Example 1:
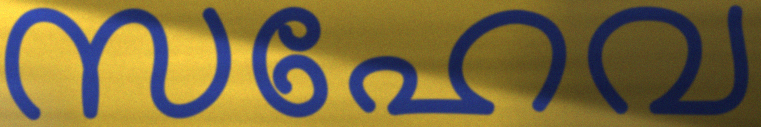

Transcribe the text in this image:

സഹേവ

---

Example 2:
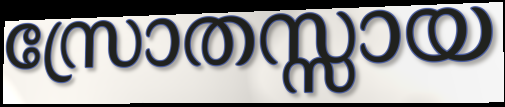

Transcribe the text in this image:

സ്രോതസ്സായ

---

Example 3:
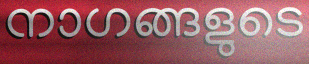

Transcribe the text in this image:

നാഗങ്ങളുടെ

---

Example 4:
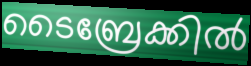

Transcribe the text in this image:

ടൈബ്രേക്കിൽ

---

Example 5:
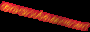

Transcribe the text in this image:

അയാൾക്കെന്താണ്